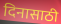
दिनासाठी